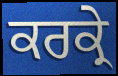
ਕਰਕ੍ਰੇ